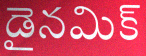
డైనమిక్